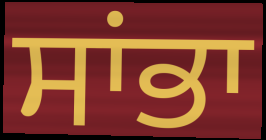
ਸਾਂਭਾ